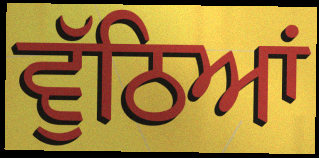
ਵੁੱਠਿਆਂ